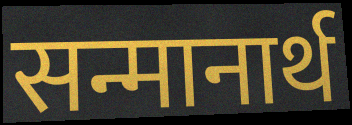
सन्मानार्थ